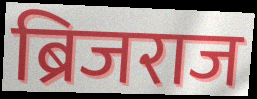
ब्रिजराज